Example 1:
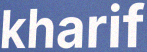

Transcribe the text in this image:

kharif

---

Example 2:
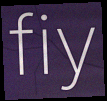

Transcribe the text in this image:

fiy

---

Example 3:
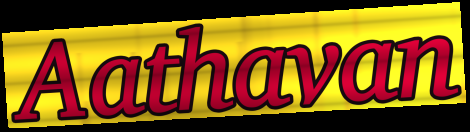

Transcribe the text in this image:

Aathavan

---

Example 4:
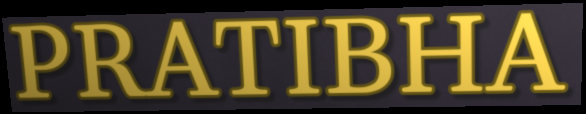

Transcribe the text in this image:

PRATIBHA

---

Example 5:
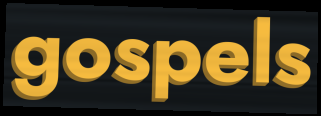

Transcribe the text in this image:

gospels